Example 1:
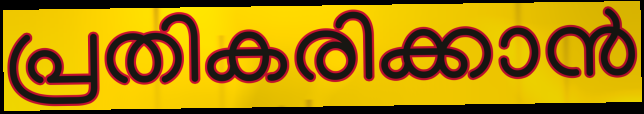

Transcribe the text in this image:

പ്രതികരിക്കാൻ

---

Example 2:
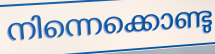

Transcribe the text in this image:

നിന്നെക്കൊണ്ടു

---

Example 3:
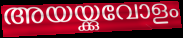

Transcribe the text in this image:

അയയ്ക്കുവോളം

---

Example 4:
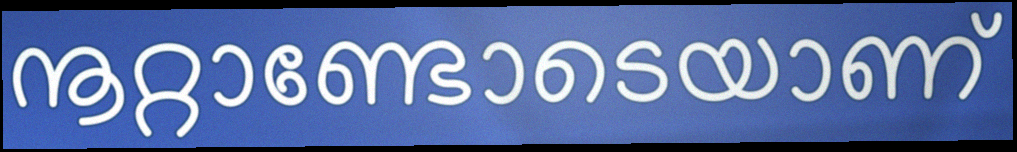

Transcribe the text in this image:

നൂറ്റാണ്ടോടെയാണ്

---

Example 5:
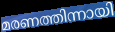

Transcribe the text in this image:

മരണത്തിന്നായി